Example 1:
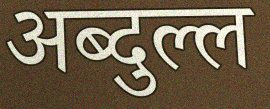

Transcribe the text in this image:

अब्दुल्ल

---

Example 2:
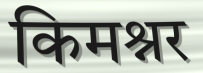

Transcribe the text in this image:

किमश्नर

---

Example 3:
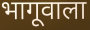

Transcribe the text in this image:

भागूवाला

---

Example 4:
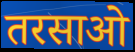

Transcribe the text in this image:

तरसाओ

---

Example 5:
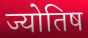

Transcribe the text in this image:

ज्योतिष